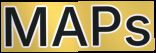
MAPs